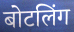
बोटलिंग